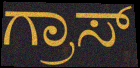
ಗ್ರಾಸ್